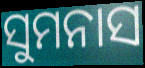
ସୁମନାସ